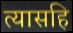
त्यासहि